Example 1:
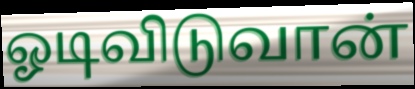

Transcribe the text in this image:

ஓடிவிடுவான்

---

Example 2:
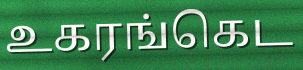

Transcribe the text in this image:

உகரங்கெட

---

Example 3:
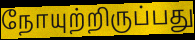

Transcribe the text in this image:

நோயுற்றிருப்பது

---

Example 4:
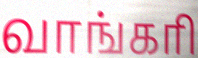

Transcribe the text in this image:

வாங்கரி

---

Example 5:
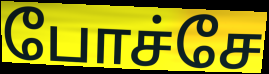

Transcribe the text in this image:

போச்சே